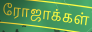
ரோஜாக்கள்